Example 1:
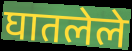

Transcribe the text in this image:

घातलेले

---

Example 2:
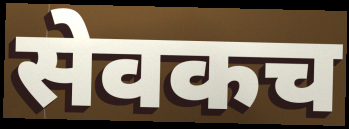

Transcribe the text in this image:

सेवकच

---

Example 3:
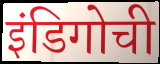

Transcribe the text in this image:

इंडिगोची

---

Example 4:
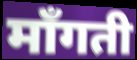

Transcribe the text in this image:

माँगती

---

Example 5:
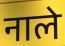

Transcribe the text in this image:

नाले